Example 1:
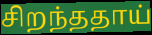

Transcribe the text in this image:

சிறந்ததாய்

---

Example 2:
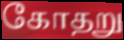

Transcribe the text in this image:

கோதறு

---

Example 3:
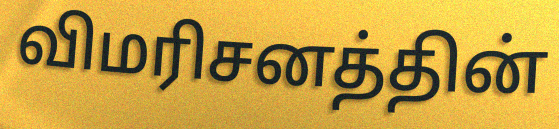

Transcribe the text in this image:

விமரிசனத்தின்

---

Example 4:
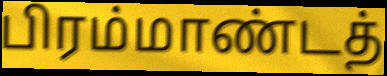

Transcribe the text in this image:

பிரம்மாண்டத்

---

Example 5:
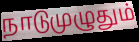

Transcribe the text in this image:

நாடுமுழுதும்